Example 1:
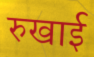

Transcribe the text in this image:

रुखाई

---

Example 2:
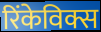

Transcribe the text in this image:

रिंकेविक्स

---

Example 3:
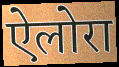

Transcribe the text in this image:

ऐलोरा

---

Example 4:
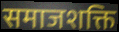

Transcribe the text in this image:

समाजशक्ति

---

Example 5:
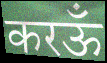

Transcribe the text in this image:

करऊँ